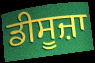
ਡੀਸੂਜ਼ਾ